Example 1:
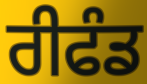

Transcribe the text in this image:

ਰੀਫੰਡ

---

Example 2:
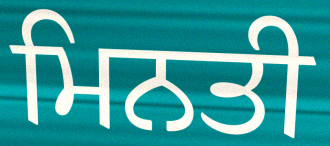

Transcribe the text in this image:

ਮਿਨਤੀ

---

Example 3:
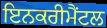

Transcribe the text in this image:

ਇਨਕਰੀਮੈਂਟਲ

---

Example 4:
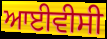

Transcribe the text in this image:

ਆਈਵੀਸੀ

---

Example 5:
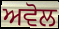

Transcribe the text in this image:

ਅਵੋਲ